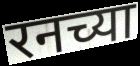
रनच्या